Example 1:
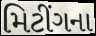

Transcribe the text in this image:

મિટીંગના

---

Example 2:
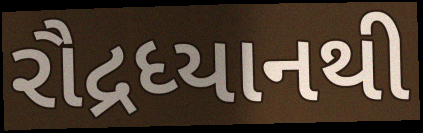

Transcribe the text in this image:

રૌદ્રધ્યાનથી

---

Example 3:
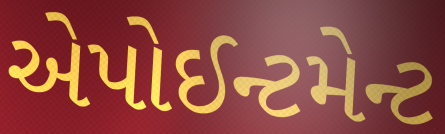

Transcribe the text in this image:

એપોઈન્ટમેન્ટ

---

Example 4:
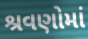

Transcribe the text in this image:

શ્રવણોમાં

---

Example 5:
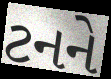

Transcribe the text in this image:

ટનને